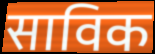
साविक